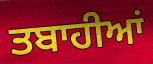
ਤਬਾਹੀਆਂ